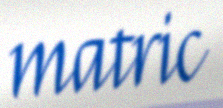
matric